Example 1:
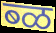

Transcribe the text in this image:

ब्ळ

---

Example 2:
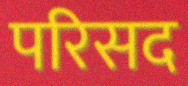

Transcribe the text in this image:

परिसद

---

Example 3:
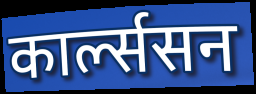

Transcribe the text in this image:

कार्ल्ससन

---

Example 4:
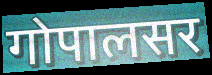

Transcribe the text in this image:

गोपालसर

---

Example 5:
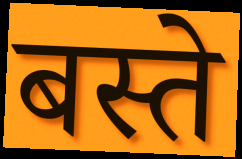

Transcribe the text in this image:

बस्ते